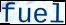
fuel